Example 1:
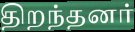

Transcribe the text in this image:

திறந்தனர்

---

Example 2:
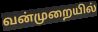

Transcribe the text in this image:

வன்முறையில்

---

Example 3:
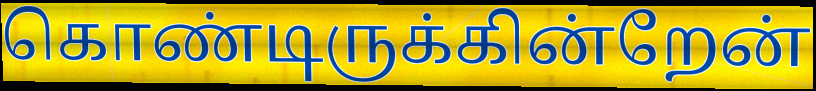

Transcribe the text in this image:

கொண்டிருக்கின்றேன்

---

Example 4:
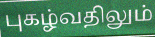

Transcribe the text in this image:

புகழ்வதிலும்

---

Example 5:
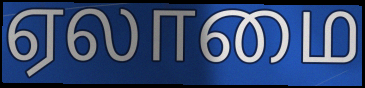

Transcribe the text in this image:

ஏலாமை